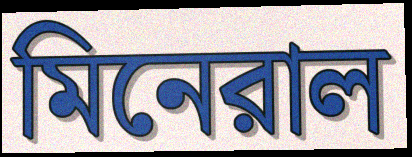
মিনেরাল